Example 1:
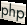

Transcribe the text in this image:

php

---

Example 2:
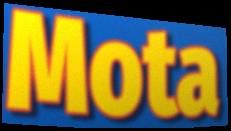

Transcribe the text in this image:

Mota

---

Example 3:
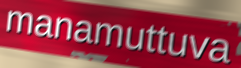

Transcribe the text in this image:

manamuttuva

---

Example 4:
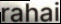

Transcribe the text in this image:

rahai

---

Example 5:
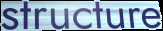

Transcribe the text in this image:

structure